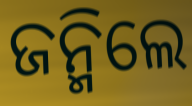
ଜନ୍ମିଲେ